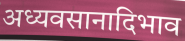
अध्यवसानादिभाव